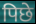
पिछे